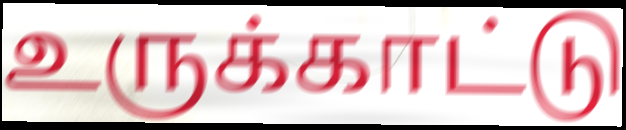
உருக்காட்டு